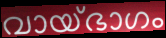
വായ്ഭാഗം